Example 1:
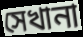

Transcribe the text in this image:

সেখানা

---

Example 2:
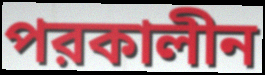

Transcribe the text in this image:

পরকালীন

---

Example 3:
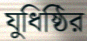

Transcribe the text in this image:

যুধিষ্ঠির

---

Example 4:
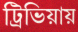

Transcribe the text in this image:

ট্রিভিয়ায়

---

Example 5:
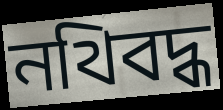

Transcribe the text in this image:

নথিবদ্ধ